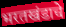
भरतखंडाचे